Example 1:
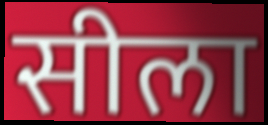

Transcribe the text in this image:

सीला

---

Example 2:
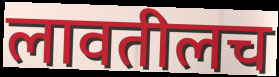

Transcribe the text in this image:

लावतीलच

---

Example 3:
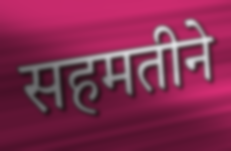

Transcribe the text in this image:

सहमतीने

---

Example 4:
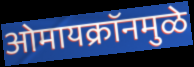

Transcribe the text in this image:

ओमायक्रॉनमुळे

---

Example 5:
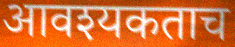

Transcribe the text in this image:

आवश्यकताच